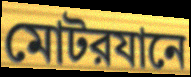
মোটরযানে